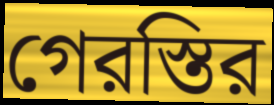
গেরস্তির